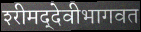
श्रीमद्‌देवीभागवत